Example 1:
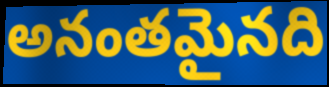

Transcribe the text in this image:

అనంతమైనది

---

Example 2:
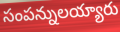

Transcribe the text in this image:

సంపన్నులయ్యారు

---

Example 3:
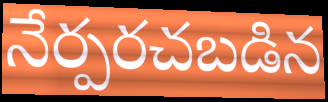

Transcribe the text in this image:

నేర్పరచబడిన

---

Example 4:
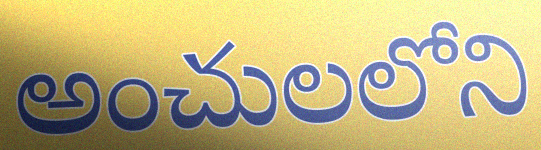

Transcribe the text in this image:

అంచులలోని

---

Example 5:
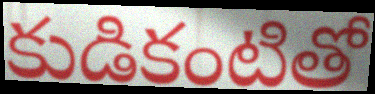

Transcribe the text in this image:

కుడికంటితో